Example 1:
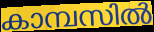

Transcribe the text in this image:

കാമ്പസിൽ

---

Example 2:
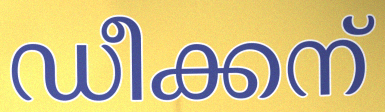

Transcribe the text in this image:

ഡീക്കന്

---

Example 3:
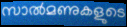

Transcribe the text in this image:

സാൽമണുകളുടെ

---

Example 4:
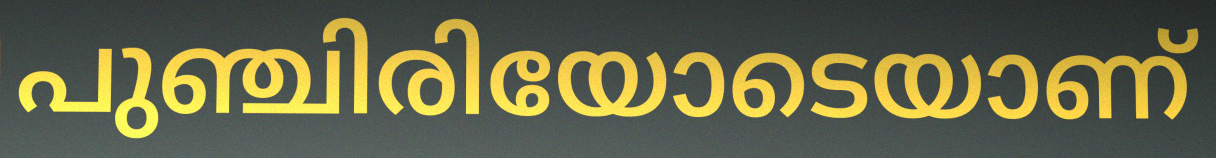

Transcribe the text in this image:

പുഞ്ചിരിയോടെയാണ്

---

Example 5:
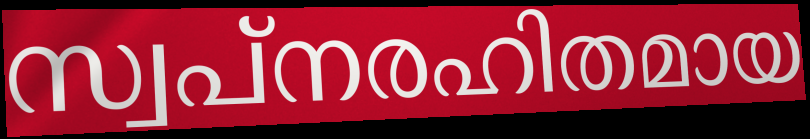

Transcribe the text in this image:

സ്വപ്നരഹിതമായ